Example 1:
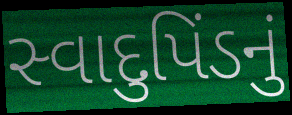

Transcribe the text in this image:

સ્વાદુપિંડનું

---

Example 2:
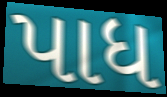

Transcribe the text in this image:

પાધ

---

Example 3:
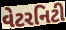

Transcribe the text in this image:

વેટરનિટી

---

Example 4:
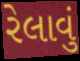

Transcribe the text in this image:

રેલાવું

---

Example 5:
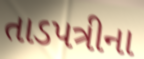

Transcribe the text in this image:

તાડપત્રીના